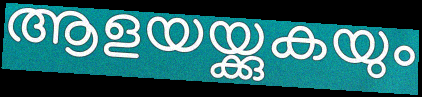
ആളയയ്ക്കുകയും